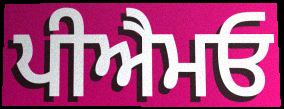
ਪੀਐਮਓ